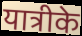
यात्रीके